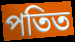
পতিত